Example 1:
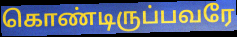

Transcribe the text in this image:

கொண்டிருப்பவரே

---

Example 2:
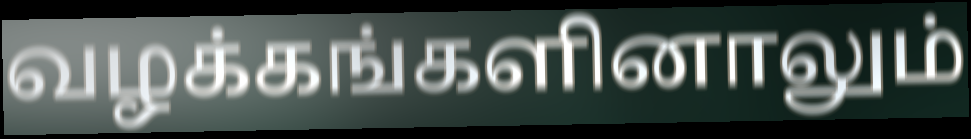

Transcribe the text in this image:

வழக்கங்களினாலும்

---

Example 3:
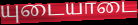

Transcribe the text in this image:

யுடையாடை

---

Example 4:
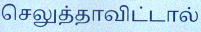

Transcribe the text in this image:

செலுத்தாவிட்டால்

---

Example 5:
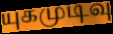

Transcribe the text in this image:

யுகமுடிவு